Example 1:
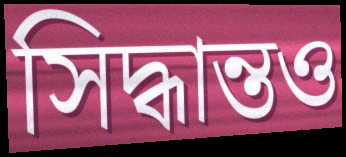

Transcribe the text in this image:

সিদ্ধান্তও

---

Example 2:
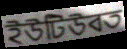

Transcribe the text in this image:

ইউটিউবত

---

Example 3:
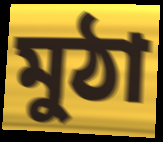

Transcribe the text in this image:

মুঠা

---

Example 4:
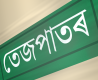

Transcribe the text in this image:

তেজপাতৰ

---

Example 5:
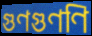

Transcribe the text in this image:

গুণগুণণি